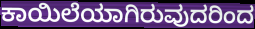
ಕಾಯಿಲೆಯಾಗಿರುವುದರಿಂದ